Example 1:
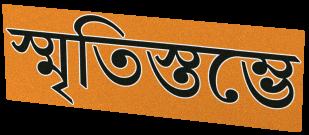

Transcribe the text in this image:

স্মৃতিস্তম্ভে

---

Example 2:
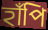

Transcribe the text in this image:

হাঁপি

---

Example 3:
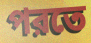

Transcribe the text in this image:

পরতে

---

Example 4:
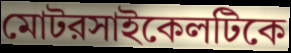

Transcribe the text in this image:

মোটরসাইকেলটিকে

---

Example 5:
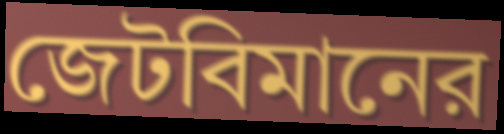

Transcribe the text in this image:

জেটবিমানের